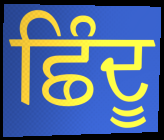
ਛਿੰਦੂ